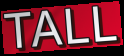
TALL